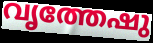
വൃത്തേഷു